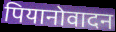
पियानोवादन